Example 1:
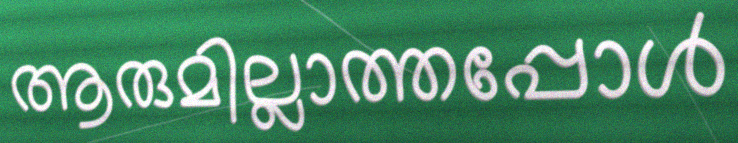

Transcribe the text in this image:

ആരുമില്ലാത്തപ്പോൾ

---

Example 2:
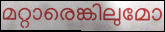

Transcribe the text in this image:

മറ്റാരെങ്കിലുമോ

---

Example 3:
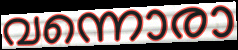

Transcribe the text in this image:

വന്നൊരാ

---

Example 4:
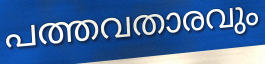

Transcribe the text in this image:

പത്തവതാരവും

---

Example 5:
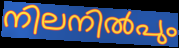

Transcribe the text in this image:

നിലനിൽപും